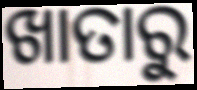
ଖାତାରୁ